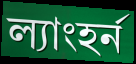
ল্যাংহর্ন